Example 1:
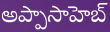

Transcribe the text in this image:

అప్పాసాహెబ్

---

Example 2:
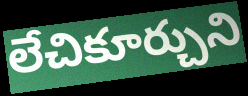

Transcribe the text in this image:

లేచికూర్చుని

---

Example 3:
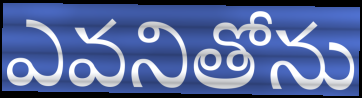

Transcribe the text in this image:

ఎవనితోను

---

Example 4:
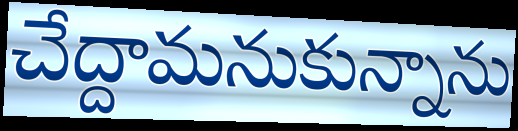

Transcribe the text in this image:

చేద్దామనుకున్నాను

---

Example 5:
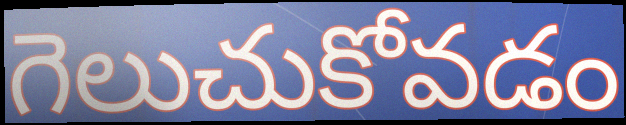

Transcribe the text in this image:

గెలుచుకోవడం